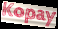
Kopay